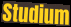
Studium